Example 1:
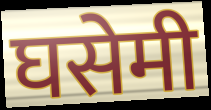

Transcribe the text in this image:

घसेमी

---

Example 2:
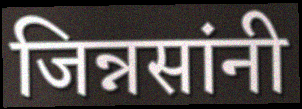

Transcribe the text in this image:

जिन्नसांनी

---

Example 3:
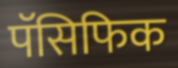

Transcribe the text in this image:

पॅसिफिक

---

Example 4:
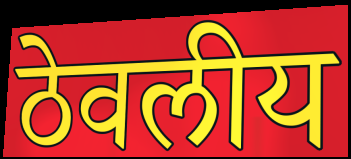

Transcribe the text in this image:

ठेवलीय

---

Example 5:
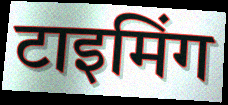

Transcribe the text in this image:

टाइमिंग